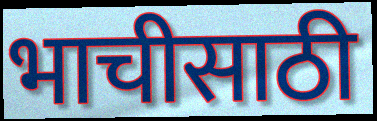
भाचीसाठी